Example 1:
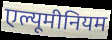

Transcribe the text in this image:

एल्‍यूमीनियम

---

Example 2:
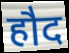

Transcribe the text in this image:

हौद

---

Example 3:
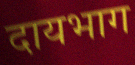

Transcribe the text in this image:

दायभाग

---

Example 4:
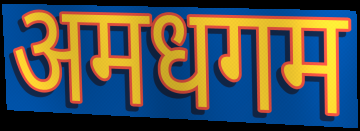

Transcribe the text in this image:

अमधगम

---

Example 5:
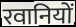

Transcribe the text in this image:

रवानियों